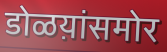
डोळय़ांसमोर